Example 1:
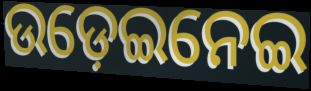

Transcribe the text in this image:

ଉଡ଼େଇନେଇ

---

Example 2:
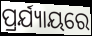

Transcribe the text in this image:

ପ୍ରର୍ଯ୍ୟାୟରେ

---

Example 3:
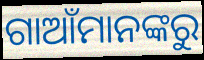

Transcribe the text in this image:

ଗାଆଁମାନଙ୍କରୁ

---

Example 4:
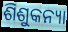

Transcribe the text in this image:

ଶିଶୁକନ୍ଯା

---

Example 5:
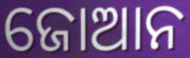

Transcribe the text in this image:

ଜୋଆନ